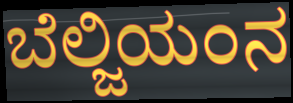
ಬೆಲ್ಜಿಯಂನ